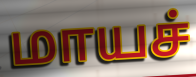
மாயச்